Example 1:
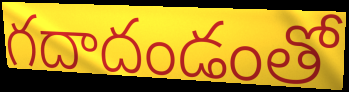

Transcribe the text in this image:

గదాదండంతో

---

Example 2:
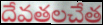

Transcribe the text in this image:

దేవతలచేత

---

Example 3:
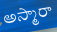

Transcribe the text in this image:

అస్మారా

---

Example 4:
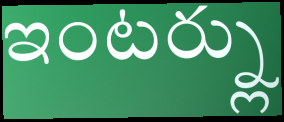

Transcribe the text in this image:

ఇంటర్న్లు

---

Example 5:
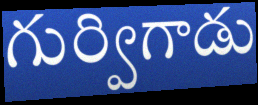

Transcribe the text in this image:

గుర్విగాడు